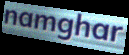
namghar